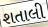
શતાલી